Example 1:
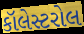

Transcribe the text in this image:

કૉલેસ્ટરોલ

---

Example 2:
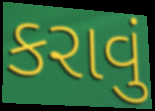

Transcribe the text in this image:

કરાવું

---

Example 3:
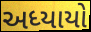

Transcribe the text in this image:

અધ્યાયો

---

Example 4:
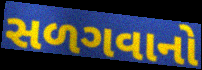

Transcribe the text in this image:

સળગવાનો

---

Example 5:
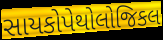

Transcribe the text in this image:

સાયકોપેથોલોજિકલ